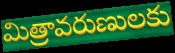
మిత్రావరుణులకు